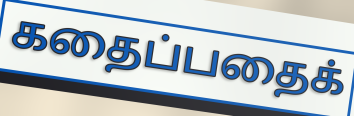
கதைப்பதைக்